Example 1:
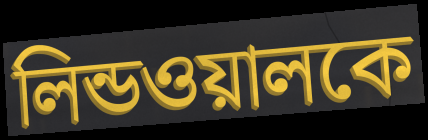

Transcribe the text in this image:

লিন্ডওয়ালকে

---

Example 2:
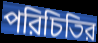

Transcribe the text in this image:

পরিচিতির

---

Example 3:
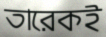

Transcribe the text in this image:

তারেকই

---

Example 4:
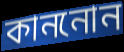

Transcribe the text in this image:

কাননোন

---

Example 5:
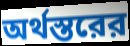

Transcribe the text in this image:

অর্থস্তরের